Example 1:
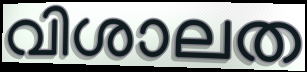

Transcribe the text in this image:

വിശാലത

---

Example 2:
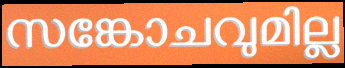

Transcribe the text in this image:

സങ്കോചവുമില്ല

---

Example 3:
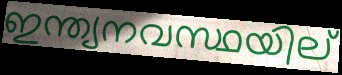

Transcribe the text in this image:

ഇന്ത്യനവസ്ഥയില്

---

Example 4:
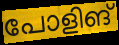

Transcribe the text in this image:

പോളിങ്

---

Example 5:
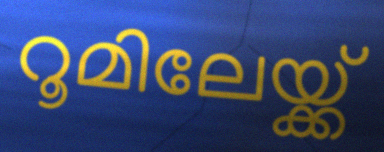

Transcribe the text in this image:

റൂമിലേയ്ക്ക്